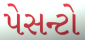
પેસન્ટો